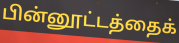
பின்னூட்டத்தைக்